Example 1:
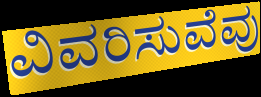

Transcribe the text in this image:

ವಿವರಿಸುವೆವು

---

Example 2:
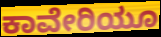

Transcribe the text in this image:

ಕಾವೇರಿಯೂ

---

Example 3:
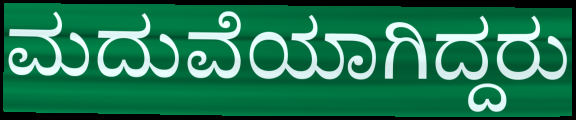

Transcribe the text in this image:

ಮದುವೆಯಾಗಿದ್ದರು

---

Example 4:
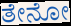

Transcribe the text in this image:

ತೇನೋ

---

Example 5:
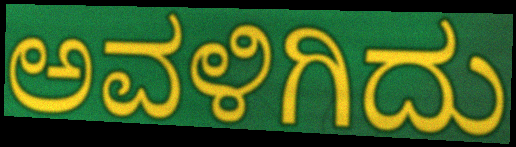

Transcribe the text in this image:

ಅವಳಿಗಿದು